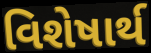
વિશેષાર્થ